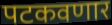
पटकवणार